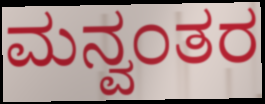
ಮನ್ವಂತರ